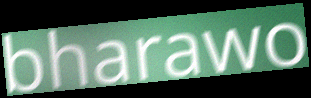
bharawo